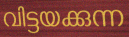
വിട്ടയക്കുന്ന